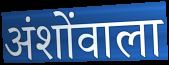
अंशोंवाला